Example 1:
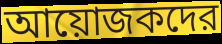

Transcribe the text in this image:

আয়োজকদের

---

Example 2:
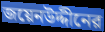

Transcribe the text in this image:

জয়েনউদ্দীনের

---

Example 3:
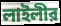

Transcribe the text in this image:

লাইলীর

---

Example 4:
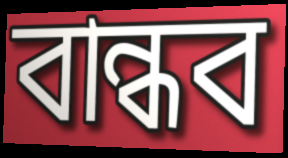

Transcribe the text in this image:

বান্ধব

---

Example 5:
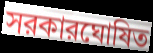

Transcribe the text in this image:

সরকারঘোষিত